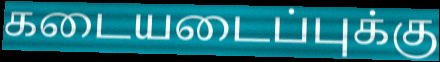
கடையடைப்புக்கு